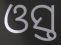
ଓସ୍ତ